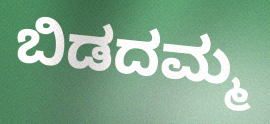
ಬಿಡದಮ್ಮ